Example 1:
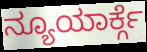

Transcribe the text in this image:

ನ್ಯೂಯಾರ್ಕ್ಗೆ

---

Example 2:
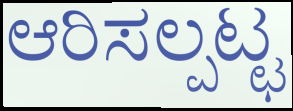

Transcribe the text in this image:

ಆರಿಸಲ್ಪಟ್ಟ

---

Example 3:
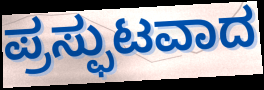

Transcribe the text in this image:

ಪ್ರಸ್ಫುಟವಾದ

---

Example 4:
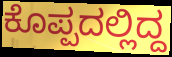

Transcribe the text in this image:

ಕೊಪ್ಪದಲ್ಲಿದ್ದ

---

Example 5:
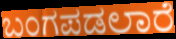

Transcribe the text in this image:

ಬಂಗಪಡಲಾರೆ